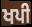
ਖਪੀ